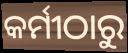
କର୍ମୀଠାରୁ